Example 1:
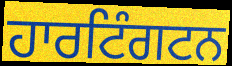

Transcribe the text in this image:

ਹਾਰਟਿੰਗਟਨ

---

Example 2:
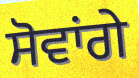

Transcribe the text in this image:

ਸੋਵਾਂਗੇ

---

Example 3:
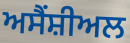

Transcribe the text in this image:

ਅਸੈਂਸ਼ੀਅਲ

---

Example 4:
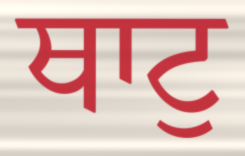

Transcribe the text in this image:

ਥਾਟੁ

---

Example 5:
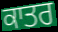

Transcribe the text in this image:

ਕਾਤਰ